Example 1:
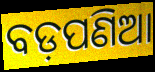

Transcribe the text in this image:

ବଡ଼ପଣିଆ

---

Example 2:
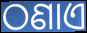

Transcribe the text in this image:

ଠଣାଏ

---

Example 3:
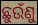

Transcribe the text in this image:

ଛୁଉଁଣୁ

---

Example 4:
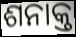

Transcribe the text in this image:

ଶନାକ୍ତ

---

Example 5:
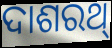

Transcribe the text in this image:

ଦାଶରଥ୍